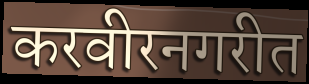
करवीरनगरीत